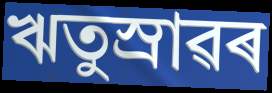
ঋতুস্ৰাৱৰ